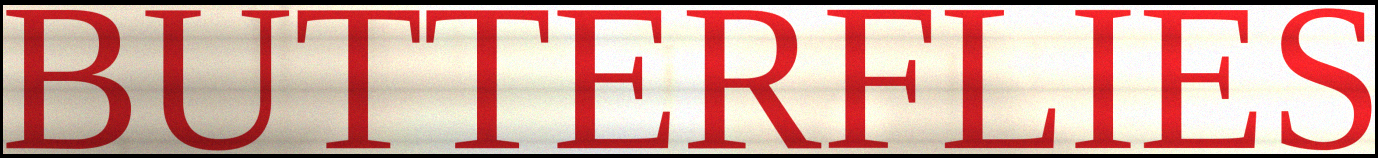
BUTTERFLIES